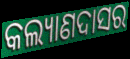
କଲ୍ୟାଣଦାସର